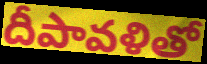
దీపావళితో